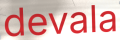
devala